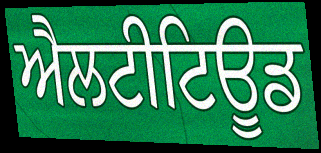
ਐਲਟੀਟਿਊਡ